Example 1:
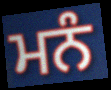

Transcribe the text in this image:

ਮਨੰ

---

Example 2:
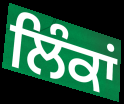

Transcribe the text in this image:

ਲਿੰਕਾਂ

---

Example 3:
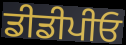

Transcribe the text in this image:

ਡੀਡੀਪੀਓ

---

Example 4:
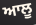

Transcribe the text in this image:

ਆਲੂ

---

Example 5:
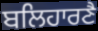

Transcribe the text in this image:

ਬਲਿਹਾਰਣੈ